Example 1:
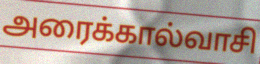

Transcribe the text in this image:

அரைக்கால்வாசி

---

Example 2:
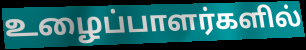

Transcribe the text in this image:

உழைப்பாளர்களில்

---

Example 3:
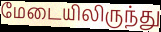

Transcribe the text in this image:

மேடையிலிருந்து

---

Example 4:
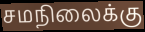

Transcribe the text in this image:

சமநிலைக்கு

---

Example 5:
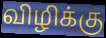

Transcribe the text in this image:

விழிக்கு